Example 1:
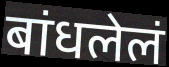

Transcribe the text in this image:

बांधलेलं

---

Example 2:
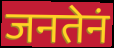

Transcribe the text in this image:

जनतेनं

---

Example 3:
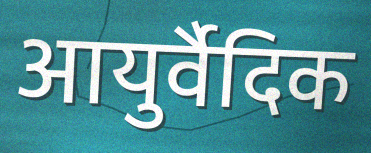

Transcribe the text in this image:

आयुर्वैदिक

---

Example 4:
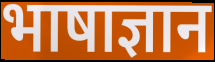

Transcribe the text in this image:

भाषाज्ञान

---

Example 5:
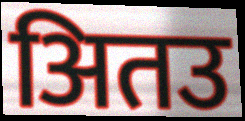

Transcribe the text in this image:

अितउ